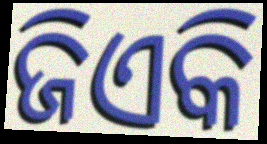
ଜିଏକି